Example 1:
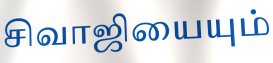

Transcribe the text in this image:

சிவாஜியையும்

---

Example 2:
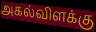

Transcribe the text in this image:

அகல்விளக்கு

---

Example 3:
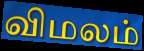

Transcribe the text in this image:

விமலம்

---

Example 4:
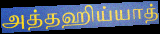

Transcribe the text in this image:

அத்தஹிய்யாத்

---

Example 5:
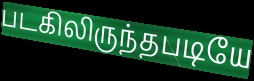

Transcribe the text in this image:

படகிலிருந்தபடியே